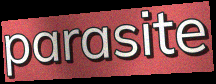
parasite